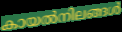
കായൽനിലങ്ങൾ